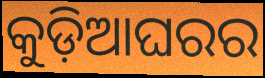
କୁଡ଼ିଆଘରର